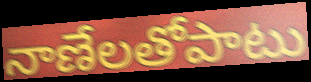
నాణేలతోపాటు